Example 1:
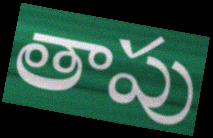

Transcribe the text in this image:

తాపు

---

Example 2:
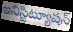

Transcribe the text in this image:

ఇనిస్టిట్యూషన్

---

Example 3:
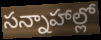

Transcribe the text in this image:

సన్నాహాల్లో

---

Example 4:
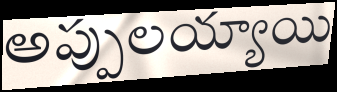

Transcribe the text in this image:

అప్పులయ్యాయి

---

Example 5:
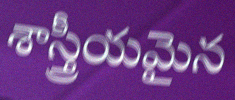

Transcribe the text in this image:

శాస్త్రీయమైన